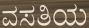
ವಸತಿಯ